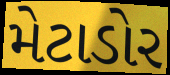
મેટાડોર